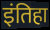
इंतिहा